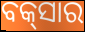
ବକ୍‌ସାର